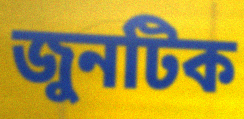
জুনটিক